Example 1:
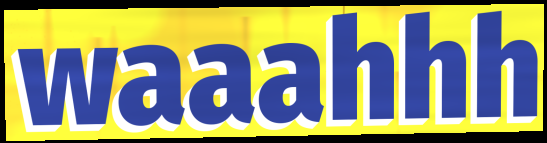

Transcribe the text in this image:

waaahhh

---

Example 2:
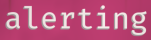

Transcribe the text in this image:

alerting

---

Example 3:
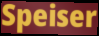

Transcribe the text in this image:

Speiser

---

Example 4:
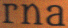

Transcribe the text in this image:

rna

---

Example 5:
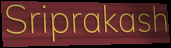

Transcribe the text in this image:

Sriprakash